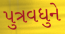
પુત્રવધુને